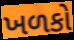
ખળકો